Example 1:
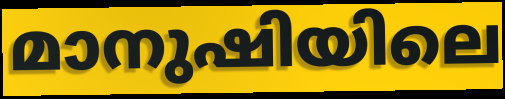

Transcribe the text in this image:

മാനുഷിയിലെ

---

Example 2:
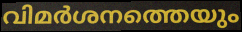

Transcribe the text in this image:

വിമർശനത്തെയും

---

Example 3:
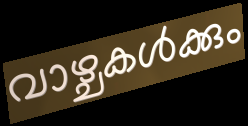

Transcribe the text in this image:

വാഴ്ചകൾക്കും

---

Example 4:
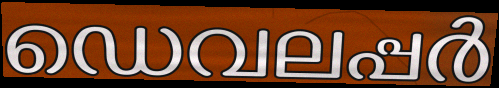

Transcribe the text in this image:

ഡെവലപ്പർ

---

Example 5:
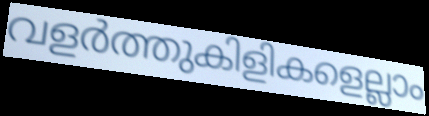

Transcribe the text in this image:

വളർത്തുകിളികളെല്ലാം